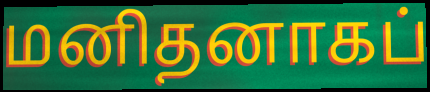
மனிதனாகப்